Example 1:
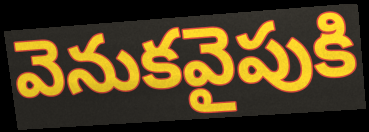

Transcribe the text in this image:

వెనుకవైపుకి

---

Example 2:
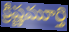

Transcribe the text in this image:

క్రిష్ణమూర్తి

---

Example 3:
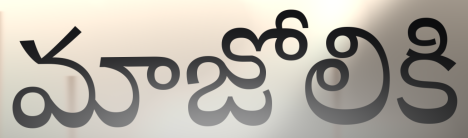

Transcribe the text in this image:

మాజోలికి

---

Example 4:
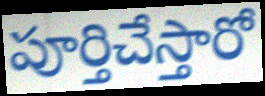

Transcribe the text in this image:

పూర్తిచేస్తారో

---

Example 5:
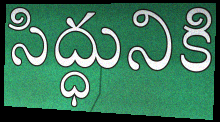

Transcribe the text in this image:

సిద్ధునికి